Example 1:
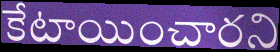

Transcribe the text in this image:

కేటాయించారని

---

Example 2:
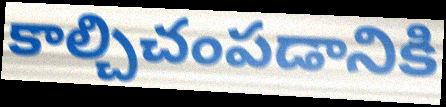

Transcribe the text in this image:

కాల్చిచంపడానికి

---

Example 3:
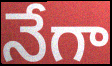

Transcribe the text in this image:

నేగా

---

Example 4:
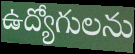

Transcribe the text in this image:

ఉద్యోగులను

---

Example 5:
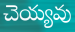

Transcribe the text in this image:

చెయ్యవు